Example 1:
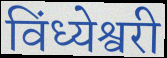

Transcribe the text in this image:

विंध्येश्वरी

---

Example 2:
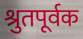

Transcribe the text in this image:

श्रुतपूर्वक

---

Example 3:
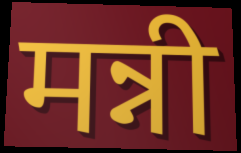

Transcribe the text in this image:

मन्नी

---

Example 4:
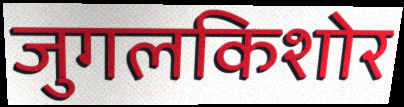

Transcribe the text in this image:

जुगलकिशोर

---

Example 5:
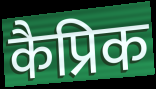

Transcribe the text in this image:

कैप्रिक